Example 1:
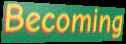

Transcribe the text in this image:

Becoming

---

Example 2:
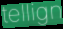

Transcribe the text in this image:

tellign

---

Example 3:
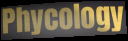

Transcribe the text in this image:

Phycology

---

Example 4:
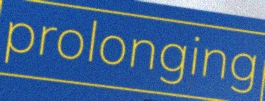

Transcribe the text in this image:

prolonging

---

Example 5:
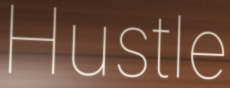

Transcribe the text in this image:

Hustle